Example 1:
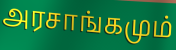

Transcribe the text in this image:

அரசாங்கமும்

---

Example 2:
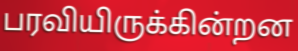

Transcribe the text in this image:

பரவியிருக்கின்றன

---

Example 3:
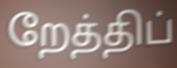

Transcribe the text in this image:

றேத்திப்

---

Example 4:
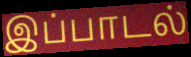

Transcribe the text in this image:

இப்பாடல்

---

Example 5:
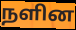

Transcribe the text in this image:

நளின